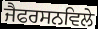
ਜੈਫਰਸਨਵਿਲੇ